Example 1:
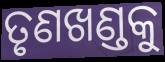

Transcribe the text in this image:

ତୃଣଖଣ୍ଡକୁ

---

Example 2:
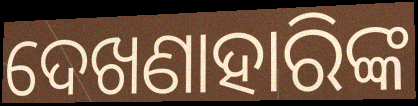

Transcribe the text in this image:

ଦେଖଣାହାରିଙ୍କ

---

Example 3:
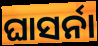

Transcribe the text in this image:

ଘାସର୍ନା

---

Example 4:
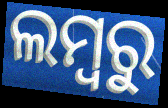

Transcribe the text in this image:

ଲମ୍ବରୁ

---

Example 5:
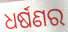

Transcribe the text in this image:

ଧର୍ଷଣର